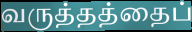
வருத்தத்தைப்